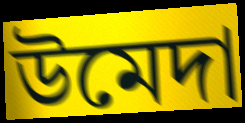
উমেদা